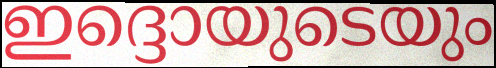
ഇദ്ദൊയുടെയും